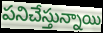
పనిచేస్తున్నాయి